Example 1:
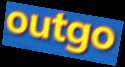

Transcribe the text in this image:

outgo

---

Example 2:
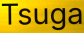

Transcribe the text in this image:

Tsuga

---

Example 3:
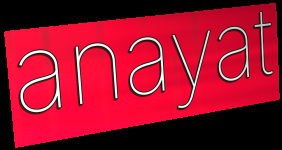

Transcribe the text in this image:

anayat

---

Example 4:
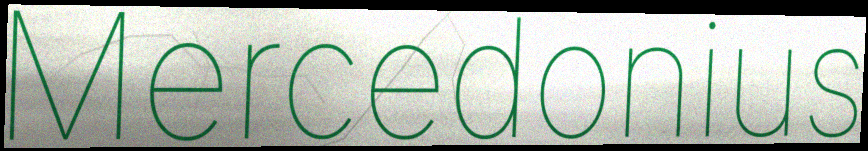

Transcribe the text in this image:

Mercedonius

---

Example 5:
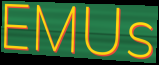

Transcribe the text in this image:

EMUs